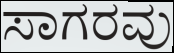
ಸಾಗರವು